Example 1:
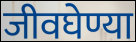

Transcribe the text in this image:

जीवघेण्या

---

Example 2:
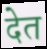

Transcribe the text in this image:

देत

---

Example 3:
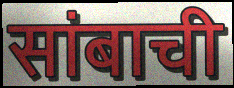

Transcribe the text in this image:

सांबाची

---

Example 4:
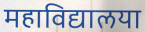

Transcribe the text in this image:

महाविद्यालया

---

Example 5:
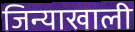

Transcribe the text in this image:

जिन्याखाली